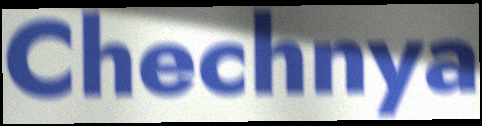
Chechnya